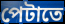
পেটাতে